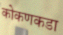
कोकणकडा